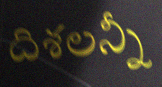
దిశలన్నీ